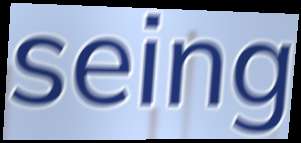
seing